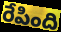
రేపింది